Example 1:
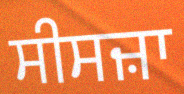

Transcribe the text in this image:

ਸੀਸਜ਼ਾ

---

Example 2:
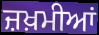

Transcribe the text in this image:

ਜ਼ਖ਼ਮੀਆਂ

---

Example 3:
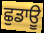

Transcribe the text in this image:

ਛੁਡਾਊ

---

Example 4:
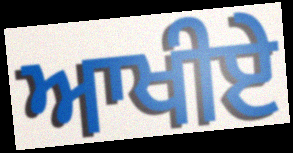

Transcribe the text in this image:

ਆਖੀਏ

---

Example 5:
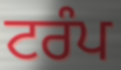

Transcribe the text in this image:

ਟਰੰਪ